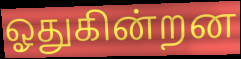
ஓதுகின்றன